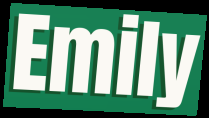
Emily